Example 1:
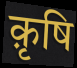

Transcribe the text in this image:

क़ृषि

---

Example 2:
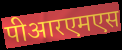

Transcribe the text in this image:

पीआरएमएस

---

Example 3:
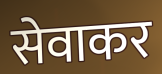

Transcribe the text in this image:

सेवाकर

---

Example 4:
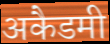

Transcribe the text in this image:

अकैडमी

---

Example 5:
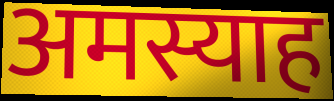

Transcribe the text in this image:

अमस्याह